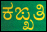
ಕಙ್ಖತಿ